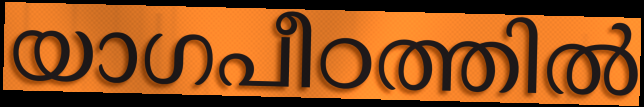
യാഗപീഠത്തിൽ